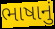
ભાષાનું